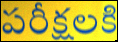
పరీక్షలకి